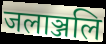
जलाञ्जलि